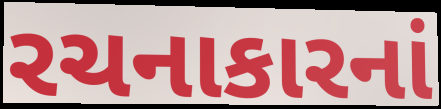
રચનાકારનાં